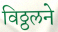
विठ्ठलने